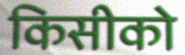
किसीको